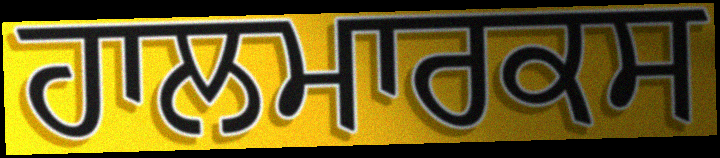
ਹਾਲਮਾਰਕਸ